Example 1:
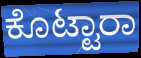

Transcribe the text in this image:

ಕೊಟ್ಟಾರಾ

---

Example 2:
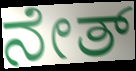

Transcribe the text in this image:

ನೇತ್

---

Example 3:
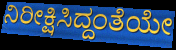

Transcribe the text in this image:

ನಿರೀಕ್ಷಿಸಿದ್ದಂತೆಯೇ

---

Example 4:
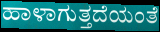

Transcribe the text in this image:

ಹಾಳಾಗುತ್ತದೆಯಂತೆ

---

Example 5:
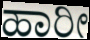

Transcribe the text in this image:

ಹಾರೀ